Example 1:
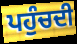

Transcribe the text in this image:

ਪਹੁੰਚਦੀ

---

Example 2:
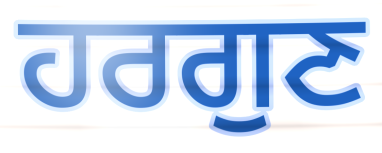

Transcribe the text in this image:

ਹਰਗੁਣ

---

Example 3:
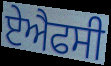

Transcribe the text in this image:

ਏਐਫਸੀ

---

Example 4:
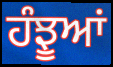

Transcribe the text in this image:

ਹੰਝੂਆਂ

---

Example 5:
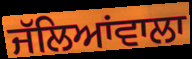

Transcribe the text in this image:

ਜੱਲਿਆਂਵਾਲਾ